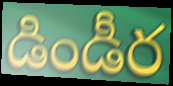
డిండీర